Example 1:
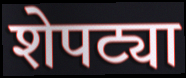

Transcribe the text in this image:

शेपट्या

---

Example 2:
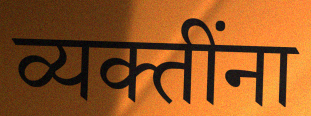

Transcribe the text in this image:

व्यक्तींना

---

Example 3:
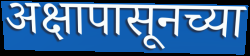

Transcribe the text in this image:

अक्षापासूनच्या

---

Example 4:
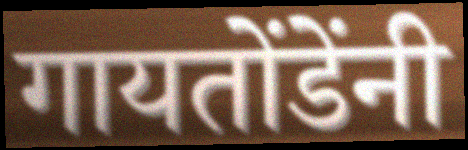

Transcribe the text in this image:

गायतोंडेंनी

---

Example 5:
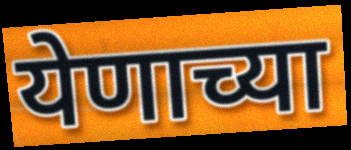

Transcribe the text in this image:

येणाच्या